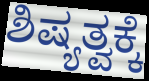
ಶಿಷ್ಯತ್ವಕ್ಕೆ